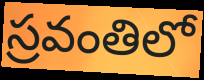
స్రవంతిలో